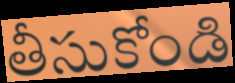
తీసుకోండి